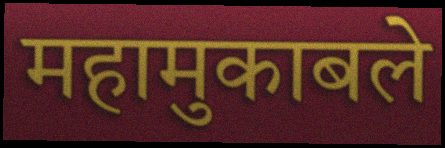
महामुकाबले